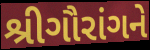
શ્રીગૌરાંગને